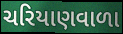
ચરિયાણવાળા